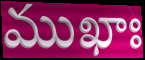
ముఖాః